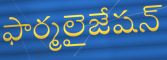
ఫార్మలైజేషన్